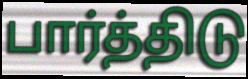
பார்த்திடு